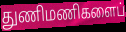
துணிமணிகளைப்